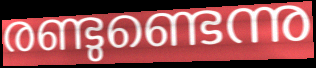
രണ്ടുണ്ടെന്നു